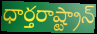
ధార్తరాష్ట్రాన్